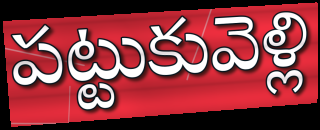
పట్టుకువెళ్లి